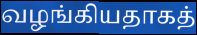
வழங்கியதாகத்